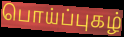
பொய்ப்புகழ்